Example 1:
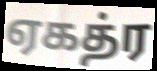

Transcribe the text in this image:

ஏகத்ர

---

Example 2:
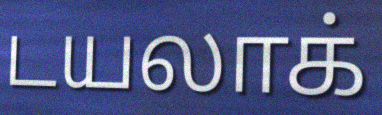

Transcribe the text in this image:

டயலாக்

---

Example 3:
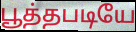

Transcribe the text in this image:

பூத்தபடியே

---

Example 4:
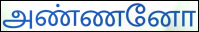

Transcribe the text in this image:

அண்ணனோ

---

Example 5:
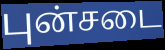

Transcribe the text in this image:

புன்சடை